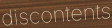
discontents